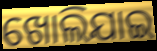
ଖୋଲିଯାଇ